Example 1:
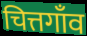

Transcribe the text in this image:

चित्तगाँव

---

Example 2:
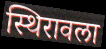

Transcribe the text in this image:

स्थिरावला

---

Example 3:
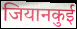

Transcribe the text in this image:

जियानकुई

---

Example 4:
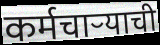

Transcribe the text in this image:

कर्मचाऱ्याची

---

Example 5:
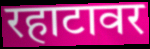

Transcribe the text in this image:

रहाटावर